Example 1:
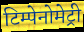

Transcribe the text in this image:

टिम्पेनोमेट्री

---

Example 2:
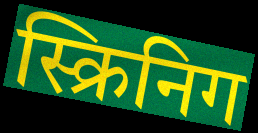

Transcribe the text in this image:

स्क्रिनिग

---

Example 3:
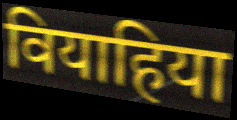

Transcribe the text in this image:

वियाहिया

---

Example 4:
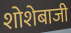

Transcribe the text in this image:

शोशेबाजी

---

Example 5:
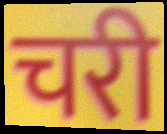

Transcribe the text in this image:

चरी